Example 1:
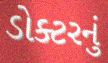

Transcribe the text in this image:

ડોક્ટરનું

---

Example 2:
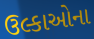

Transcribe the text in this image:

ઉલ્કાઓના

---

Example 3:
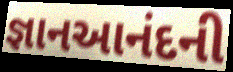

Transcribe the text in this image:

જ્ઞાનઆનંદની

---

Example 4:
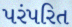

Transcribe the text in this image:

પરંપરિત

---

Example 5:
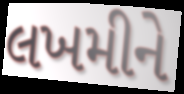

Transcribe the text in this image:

લખમીને